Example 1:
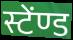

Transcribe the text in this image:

स्टेंण्ड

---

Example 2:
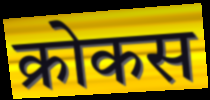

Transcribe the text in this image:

क्रोकस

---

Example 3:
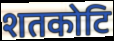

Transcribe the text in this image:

शतकोटि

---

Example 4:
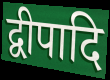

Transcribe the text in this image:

द्वीपादि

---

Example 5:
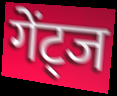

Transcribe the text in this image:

गेंट्ज